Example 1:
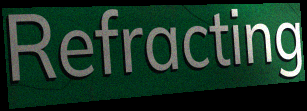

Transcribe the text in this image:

Refracting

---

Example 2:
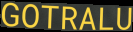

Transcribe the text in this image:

GOTRALU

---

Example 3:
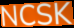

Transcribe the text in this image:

NCSK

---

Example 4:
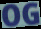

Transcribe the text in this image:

OG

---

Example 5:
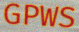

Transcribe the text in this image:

GPWS